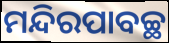
ମନ୍ଦିରପାବଚ୍ଛ